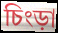
চিংড়া